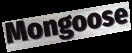
Mongoose